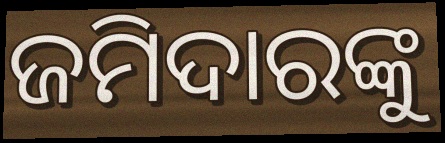
ଜମିଦାରଙ୍କୁ